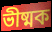
ভীষ্মক